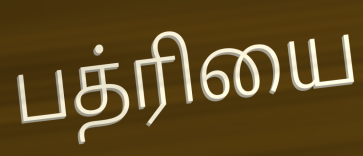
பத்ரியை